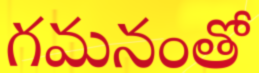
గమనంతో